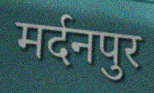
मर्दनपुर